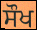
ਸੌਖ